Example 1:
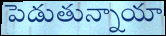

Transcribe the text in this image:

పెడుతున్నాయా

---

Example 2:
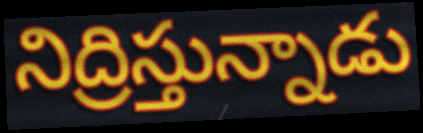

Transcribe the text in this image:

నిద్రిస్తున్నాడు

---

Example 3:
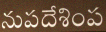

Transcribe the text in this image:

నుపదేశింప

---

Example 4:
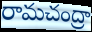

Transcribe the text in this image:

రామచంద్రా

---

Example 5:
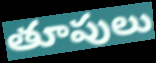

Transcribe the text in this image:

తూపులు